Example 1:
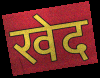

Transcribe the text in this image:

खेद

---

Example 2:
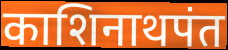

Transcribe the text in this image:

काशिनाथपंत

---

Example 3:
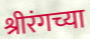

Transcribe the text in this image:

श्रीरंगच्या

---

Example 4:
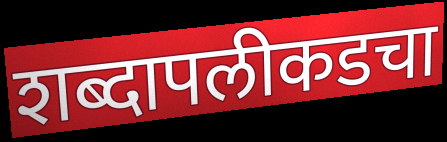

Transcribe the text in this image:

शब्दापलीकडचा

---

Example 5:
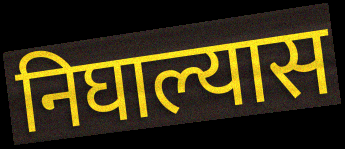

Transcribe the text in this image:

निघाल्यास